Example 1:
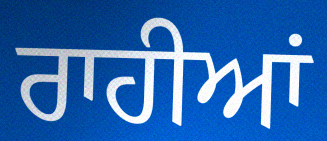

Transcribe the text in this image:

ਰਾਹੀਆਂ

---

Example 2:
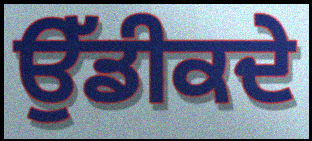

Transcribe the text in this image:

ਉੱਡੀਕਦੇ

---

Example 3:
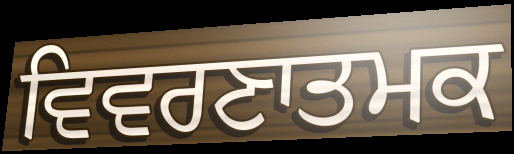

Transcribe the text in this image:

ਵਿਵਰਣਾਤਮਕ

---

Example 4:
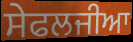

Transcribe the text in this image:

ਸੇਫਲਜੀਆ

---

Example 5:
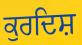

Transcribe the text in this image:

ਕੁਰਦਿਸ਼